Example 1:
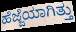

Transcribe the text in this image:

ಹೆಜ್ಜೆಯಾಗಿತ್ತು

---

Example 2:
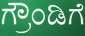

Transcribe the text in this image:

ಗ್ರೌಂಡಿಗೆ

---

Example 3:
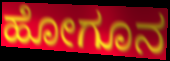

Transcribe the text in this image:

ಹೋಗೂನ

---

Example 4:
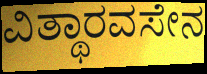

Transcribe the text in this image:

ವಿತ್ಥಾರವಸೇನ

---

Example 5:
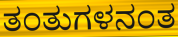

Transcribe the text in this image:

ತಂತುಗಳನಂತ